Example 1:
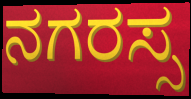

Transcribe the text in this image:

ನಗರಸ್ಸ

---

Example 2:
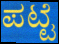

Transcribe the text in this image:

ಪಟ್ಟೆ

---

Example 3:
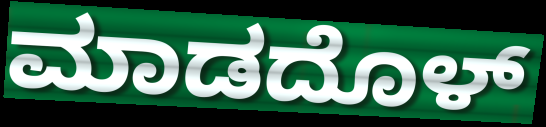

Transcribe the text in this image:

ಮಾಡದೊಳ್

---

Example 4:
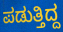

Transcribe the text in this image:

ಪಡುತ್ತಿದ್ದ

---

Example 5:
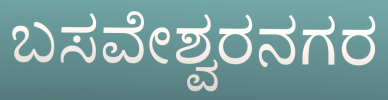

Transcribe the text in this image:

ಬಸವೇಶ್ವರನಗರ